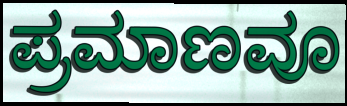
ಪ್ರಮಾಣವೂ